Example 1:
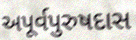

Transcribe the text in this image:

અપૂર્વપુરુષદાસ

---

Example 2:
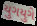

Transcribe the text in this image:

યુગયુગે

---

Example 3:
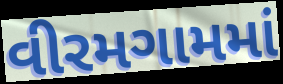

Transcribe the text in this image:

વીરમગામમાં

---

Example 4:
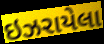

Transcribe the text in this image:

ઇઝરાયેલા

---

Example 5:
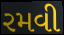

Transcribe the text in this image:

રમવી